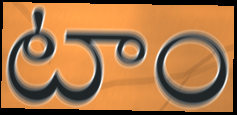
టాం